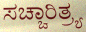
ಸಚ್ಚಾರಿತ್ರ್ಯ